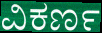
ವಿಕರ್ಣ